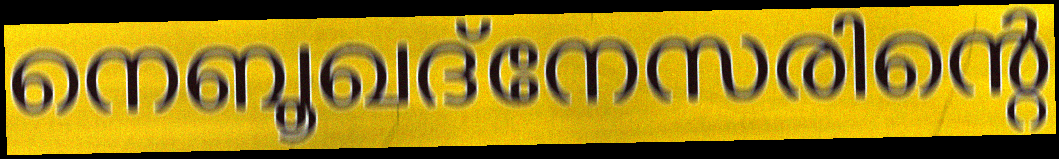
നെബൂഖദ്നേസരിന്റെ